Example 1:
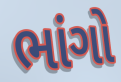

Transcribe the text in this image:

ભાંગો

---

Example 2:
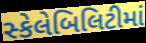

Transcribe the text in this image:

સ્કેલેબિલિટીમાં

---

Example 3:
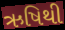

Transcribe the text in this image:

ઋષિથી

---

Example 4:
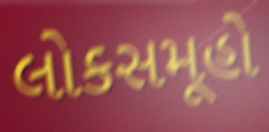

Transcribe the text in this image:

લોકસમૂહો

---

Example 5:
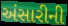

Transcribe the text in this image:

અંસારીની